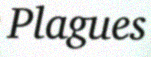
Plagues